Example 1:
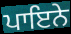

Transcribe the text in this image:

ਪਾਇਨੇ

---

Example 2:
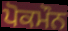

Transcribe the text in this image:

ਪੋਕਮੌਨ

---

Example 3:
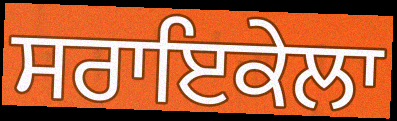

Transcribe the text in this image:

ਸਰਾਇਕੇਲਾ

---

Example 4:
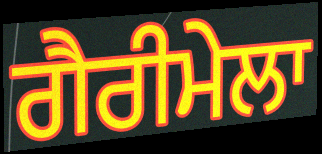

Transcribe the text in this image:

ਗੈਰੀਮੇਲਾ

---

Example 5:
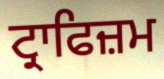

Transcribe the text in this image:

ਟ੍ਰਾਫਿਜ਼ਮ